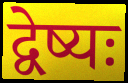
द्वेष्यः